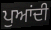
ਪੁਆਂਦੀ